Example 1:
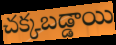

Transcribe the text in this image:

చక్కబడ్డాయి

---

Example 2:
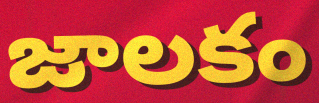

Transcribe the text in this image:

జాలకం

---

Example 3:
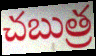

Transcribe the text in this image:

చబుత్ర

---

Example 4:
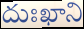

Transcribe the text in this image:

దుఃఖాని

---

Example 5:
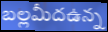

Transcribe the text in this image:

బల్లమీదఉన్న